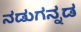
ನಡುಗನ್ನಡ